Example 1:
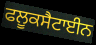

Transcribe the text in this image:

ਫਲੂਕਸੈਟਾਈਨ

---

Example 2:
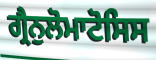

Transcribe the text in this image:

ਗ੍ਰੈਨੁਲੋਮਾਟੋਸਿਸ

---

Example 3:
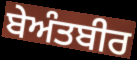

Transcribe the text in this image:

ਬੇਅੰਤਬੀਰ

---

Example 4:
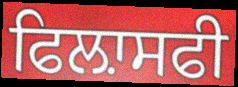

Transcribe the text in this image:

ਫਿਲ਼ਾਸਫੀ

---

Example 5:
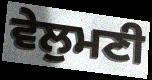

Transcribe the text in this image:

ਵੇਲੁਮਣੀ